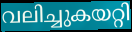
വലിച്ചുകയറ്റി